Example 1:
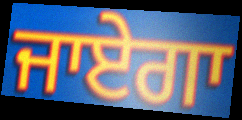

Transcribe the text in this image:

ਜਾਏਗਾ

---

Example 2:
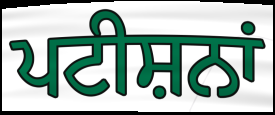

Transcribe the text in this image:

ਪਟੀਸ਼ਨਾਂ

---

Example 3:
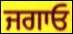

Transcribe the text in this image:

ਜਗਾਓ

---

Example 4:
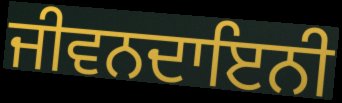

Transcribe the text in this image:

ਜੀਵਨਦਾਇਨੀ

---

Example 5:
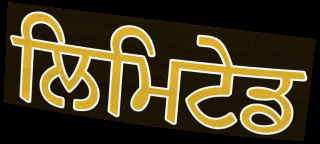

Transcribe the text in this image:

ਲਿਮਿਟੇਡ